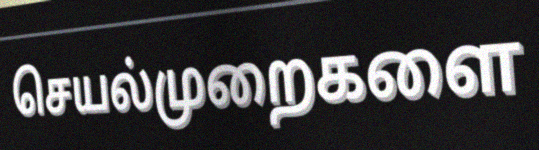
செயல்முறைகளை